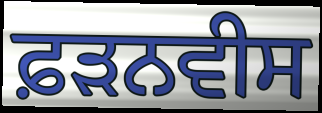
ਫ਼ੜਨਵੀਸ